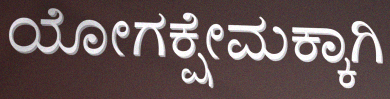
ಯೋಗಕ್ಷೇಮಕ್ಕಾಗಿ